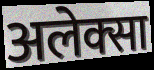
अलेक्‍सा